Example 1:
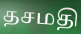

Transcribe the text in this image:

தசமதி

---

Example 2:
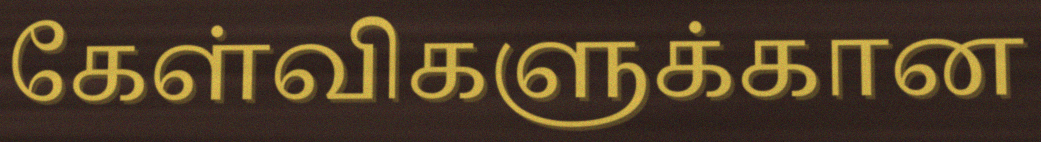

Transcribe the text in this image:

கேள்விகளுக்கான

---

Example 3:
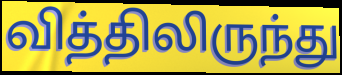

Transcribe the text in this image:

வித்திலிருந்து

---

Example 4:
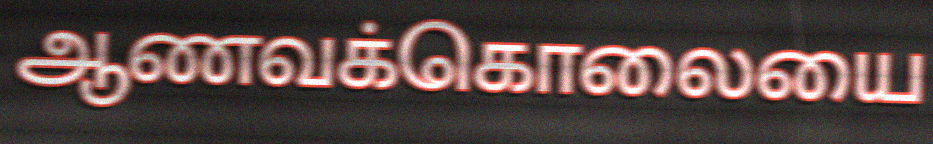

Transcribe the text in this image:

ஆணவக்கொலையை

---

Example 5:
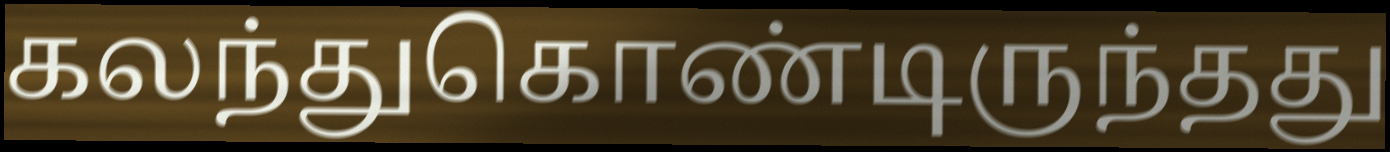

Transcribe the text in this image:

கலந்துகொண்டிருந்தது